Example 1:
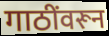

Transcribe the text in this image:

गाठींवरून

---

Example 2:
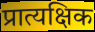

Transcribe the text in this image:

प्रात्यक्षिक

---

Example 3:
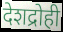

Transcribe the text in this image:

देशद्रोही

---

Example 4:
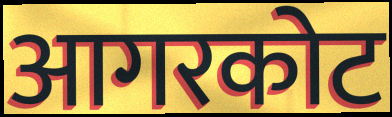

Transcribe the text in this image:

आगरकोट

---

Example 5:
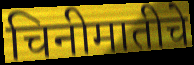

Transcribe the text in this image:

चिनीमातीचे